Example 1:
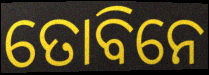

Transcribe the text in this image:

ତୋବିନେ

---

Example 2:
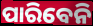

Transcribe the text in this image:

ପାରିବେନି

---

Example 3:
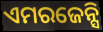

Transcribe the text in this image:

ଏମରଜେନ୍ସି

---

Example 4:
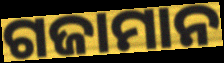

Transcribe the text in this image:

ଗଜାମାନ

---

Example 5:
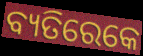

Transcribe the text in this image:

ବ୍ୟତିରେକେ